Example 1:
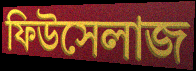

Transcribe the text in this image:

ফিউসেলাজ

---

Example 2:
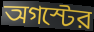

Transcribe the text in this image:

অগস্টের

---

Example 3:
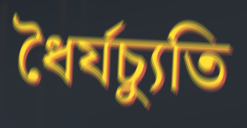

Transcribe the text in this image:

ধৈর্যচ্যুতি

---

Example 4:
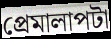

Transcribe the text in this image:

প্রেমালাপটা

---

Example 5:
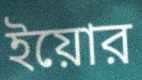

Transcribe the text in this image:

ইয়োর